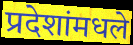
प्रदेशांमधले